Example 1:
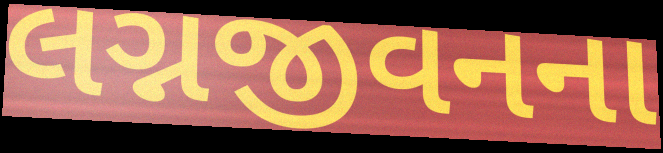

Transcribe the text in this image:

લગ્નજીવનના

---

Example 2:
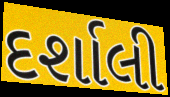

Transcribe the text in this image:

દર્શાલી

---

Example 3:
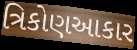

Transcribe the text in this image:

ત્રિકોણઆકાર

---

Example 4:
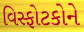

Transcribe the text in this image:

વિસ્ફોટકોને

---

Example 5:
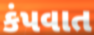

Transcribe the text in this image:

કંપવાત